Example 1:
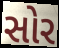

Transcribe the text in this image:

સોર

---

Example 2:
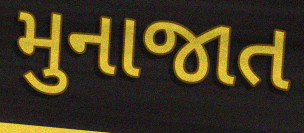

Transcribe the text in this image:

મુનાજાત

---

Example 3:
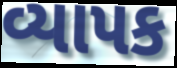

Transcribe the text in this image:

વ્યાપક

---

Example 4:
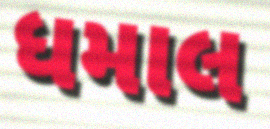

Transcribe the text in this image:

ધમાલ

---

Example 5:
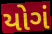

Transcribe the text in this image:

યોગં